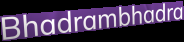
Bhadrambhadra